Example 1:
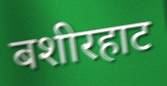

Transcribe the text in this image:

बशीरहाट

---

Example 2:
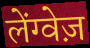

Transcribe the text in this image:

लेंग्वेज़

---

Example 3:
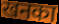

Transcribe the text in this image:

खनका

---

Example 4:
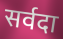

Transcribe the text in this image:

सर्वदा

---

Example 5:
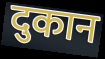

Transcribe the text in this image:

दुकान